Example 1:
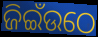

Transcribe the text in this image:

ଜିଇଁଉଠେ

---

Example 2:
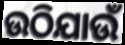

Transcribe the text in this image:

ଉଠିଯାଉଁ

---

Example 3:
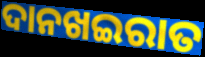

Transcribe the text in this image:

ଦାନଖଇରାତ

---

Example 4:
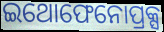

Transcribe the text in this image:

ଇଥୋଫେନୋପ୍ରକ୍ସ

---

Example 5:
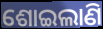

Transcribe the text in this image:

ଶୋଇଲାଣି